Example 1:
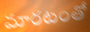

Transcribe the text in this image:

మారటంతో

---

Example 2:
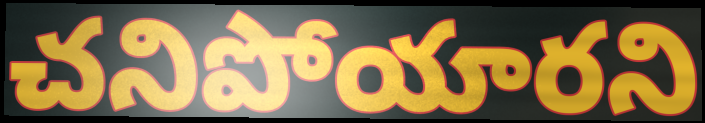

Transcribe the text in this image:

చనిపోయారని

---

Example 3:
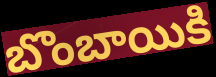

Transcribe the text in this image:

బొంబాయికి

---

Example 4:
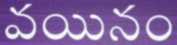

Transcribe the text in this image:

వయినం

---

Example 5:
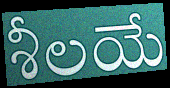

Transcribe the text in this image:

శీలయే